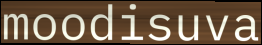
moodisuva